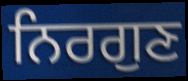
ਨਿਰਗੁਣ